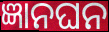
ଜ୍ଞାନଘନ